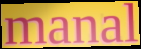
manal